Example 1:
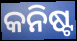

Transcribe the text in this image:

କନିଷ୍ଟ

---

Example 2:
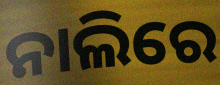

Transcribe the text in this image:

ନାଲିରେ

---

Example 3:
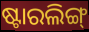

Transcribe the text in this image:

ଷ୍ଟାରଲିଙ୍ଗ୍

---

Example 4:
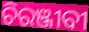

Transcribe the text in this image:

ଚିରଞ୍ଜୀବୀ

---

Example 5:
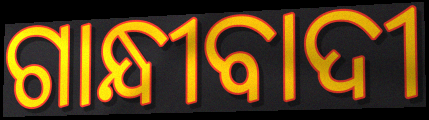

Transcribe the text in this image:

ଗାନ୍ଧୀବାଦୀ